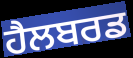
ਹੈਲਬਰਡ